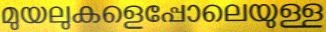
മുയലുകളെപ്പോലെയുള്ള